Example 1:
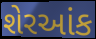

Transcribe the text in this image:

શેરઆંક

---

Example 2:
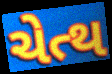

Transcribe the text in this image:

ચેત્થ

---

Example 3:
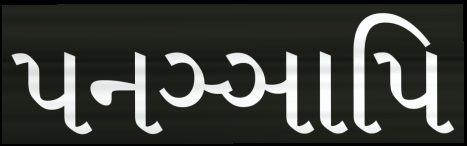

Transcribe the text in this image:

પનઞ્ઞાપિ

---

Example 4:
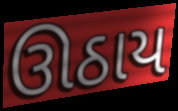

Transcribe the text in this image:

ઊઠાય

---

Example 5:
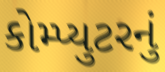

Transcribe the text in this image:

કોમ્પ્યુટરનું